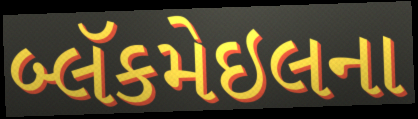
બ્લૅકમેઇલના